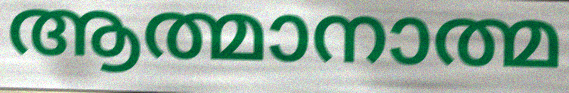
ആത്മാനാത്മ